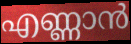
എണ്ണാൻ